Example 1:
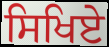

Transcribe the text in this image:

ਸਿਖਿਏ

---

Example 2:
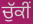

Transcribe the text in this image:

ਚੁੱਕੀਂ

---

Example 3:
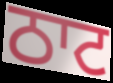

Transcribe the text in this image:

ਠਾਟ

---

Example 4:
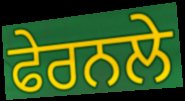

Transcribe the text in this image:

ਫੇਰਨਲੇ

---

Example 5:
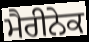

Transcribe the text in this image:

ਮੈਰੀਨੇਕ